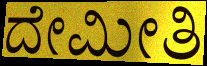
ದೇಮೀತಿ